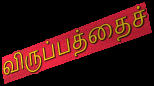
விருப்பத்தைச்